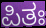
ಪಿತಃ